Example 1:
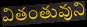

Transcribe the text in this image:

వితంతువుని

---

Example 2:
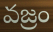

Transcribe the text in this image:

వజ్రం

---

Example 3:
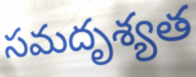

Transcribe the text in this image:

సమదృశ్యత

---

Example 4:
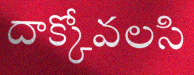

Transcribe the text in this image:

దాక్కోవలసి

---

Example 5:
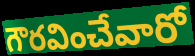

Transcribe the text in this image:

గౌరవించేవారో